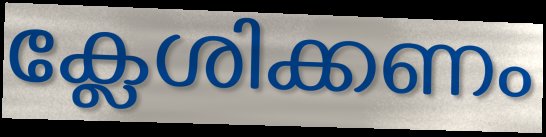
ക്ലേശിക്കണം